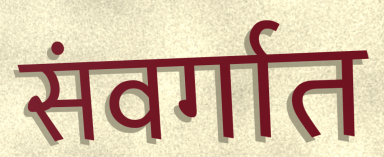
संवर्गात